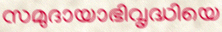
സമുദായാഭിവൃദ്ധിയെ